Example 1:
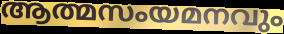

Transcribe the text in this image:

ആത്മസംയമനവും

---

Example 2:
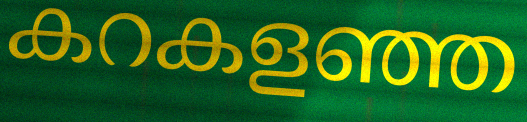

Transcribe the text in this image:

കറകളഞ്ഞ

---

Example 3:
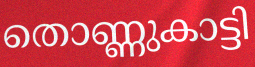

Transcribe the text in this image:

തൊണ്ണുകാട്ടി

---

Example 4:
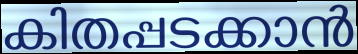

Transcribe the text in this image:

കിതപ്പടക്കാൻ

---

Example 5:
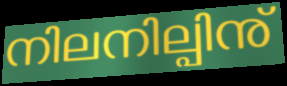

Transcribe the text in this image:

നിലനില്പിനു്